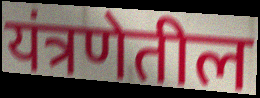
यंत्रणेतील